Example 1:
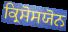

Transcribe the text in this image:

ਕ੍ਰਿਸੋਸਯੋਨ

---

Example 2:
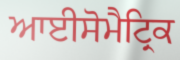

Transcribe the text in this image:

ਆਈਸੋਮੈਟ੍ਰਿਕ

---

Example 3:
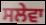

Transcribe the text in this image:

ਸਲੇਵਾ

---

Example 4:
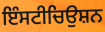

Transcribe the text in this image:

ਇੰਸਟੀਚਿਉਸ਼ਨ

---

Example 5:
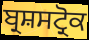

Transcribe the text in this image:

ਬ੍ਰਸ਼ਸਟ੍ਰੋਕ